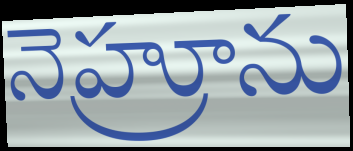
నెహ్రూను